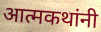
आत्मकथांनी